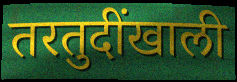
तरतुदींखाली